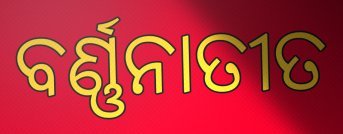
ବର୍ଣ୍ଣନାତୀତ